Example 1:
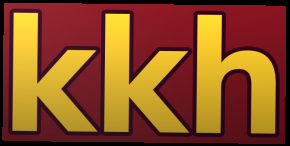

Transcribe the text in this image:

kkh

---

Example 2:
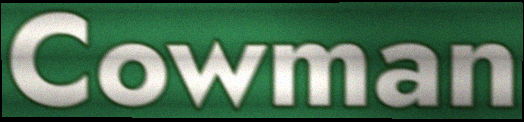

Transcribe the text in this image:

Cowman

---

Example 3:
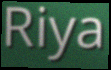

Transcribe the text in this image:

Riya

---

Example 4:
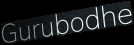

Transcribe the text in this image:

Gurubodhe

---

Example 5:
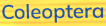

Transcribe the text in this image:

Coleoptera